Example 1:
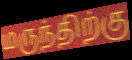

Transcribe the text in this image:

மருந்திற்கு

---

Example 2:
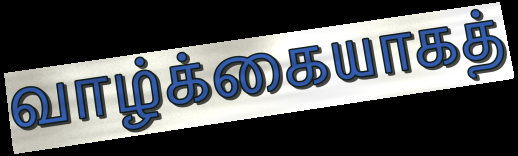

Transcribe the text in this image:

வாழ்க்கையாகத்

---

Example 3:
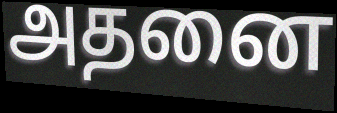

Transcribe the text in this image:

அதனை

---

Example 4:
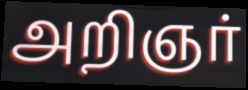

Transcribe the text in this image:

அறிஞர்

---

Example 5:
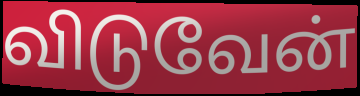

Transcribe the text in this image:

விடுவேன்